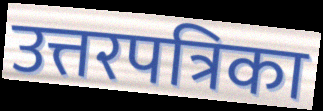
उत्तरपत्रिका